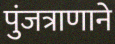
पुंजत्राणाने